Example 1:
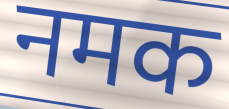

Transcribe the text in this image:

नमक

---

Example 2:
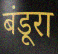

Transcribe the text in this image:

बंडूरा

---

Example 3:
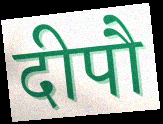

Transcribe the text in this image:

दीपौ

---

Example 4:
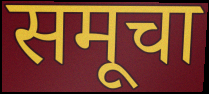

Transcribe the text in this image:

समूचा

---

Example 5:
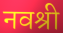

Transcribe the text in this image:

नवश्री